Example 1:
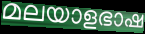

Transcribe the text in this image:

മലയാളഭാഷ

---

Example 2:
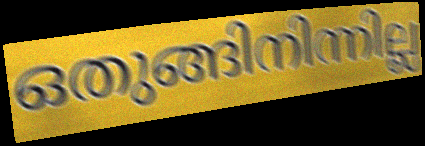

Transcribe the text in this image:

ഒതുങ്ങിനിന്നില്ല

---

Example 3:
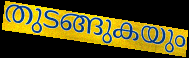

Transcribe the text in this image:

തുടങ്ങുകയും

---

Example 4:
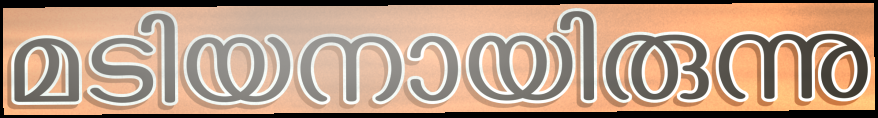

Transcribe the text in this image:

മടിയനായിരുന്നു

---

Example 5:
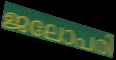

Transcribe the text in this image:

ജലോപരി